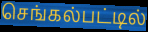
செங்கல்பட்டில்